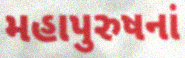
મહાપુરુષનાં